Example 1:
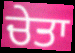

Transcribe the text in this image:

ਚੇਤਾ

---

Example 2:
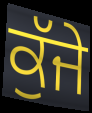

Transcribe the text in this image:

ਕੁੱਜੇ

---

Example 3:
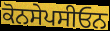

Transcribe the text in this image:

ਕੋਨਸੇਪਸੀਓਨ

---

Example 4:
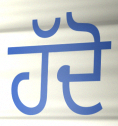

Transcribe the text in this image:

ਹੱਦੋ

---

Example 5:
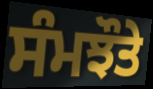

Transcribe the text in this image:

ਸੰਮਝੌਤੇ